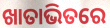
ଖାତାଭିତରେ